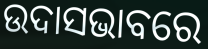
ଉଦାସଭାବରେ